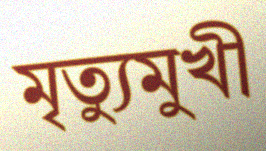
মৃত্যুমুখী